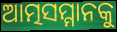
ଆତ୍ମସମ୍ମାନକୁ